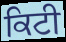
ਕਿਟੀ